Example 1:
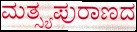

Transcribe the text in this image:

ಮತ್ಸ್ಯಪುರಾಣದ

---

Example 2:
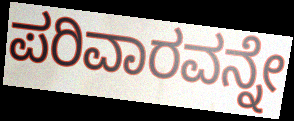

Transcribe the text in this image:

ಪರಿವಾರವನ್ನೇ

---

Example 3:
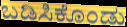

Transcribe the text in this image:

ಬಡಿಸಿಕೊಂಡು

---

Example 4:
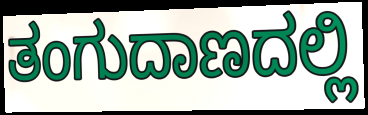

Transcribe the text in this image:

ತಂಗುದಾಣದಲ್ಲಿ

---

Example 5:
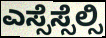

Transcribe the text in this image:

ಎಸ್ಸೆಸ್ಸೆಲ್ಸಿ